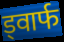
ड्वार्फ